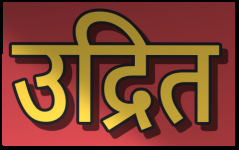
उद्रित